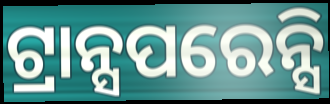
ଟ୍ରାନ୍ସପରେନ୍ସି